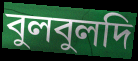
বুলবুলদি